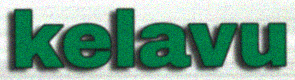
kelavu